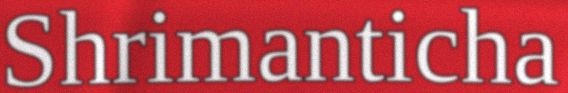
Shrimanticha